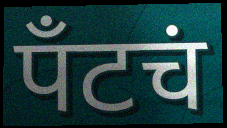
पँटचं